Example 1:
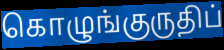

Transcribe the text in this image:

கொழுங்குருதிப்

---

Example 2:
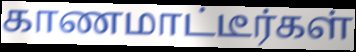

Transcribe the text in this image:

காணமாட்டீர்கள்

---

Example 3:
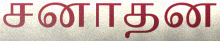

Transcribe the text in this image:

சனாதன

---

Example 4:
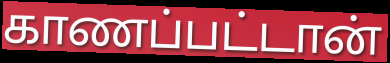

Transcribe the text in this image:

காணப்பட்டான்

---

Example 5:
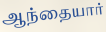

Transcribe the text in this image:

ஆந்தையார்